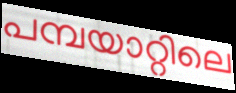
പമ്പയാറ്റിലെ